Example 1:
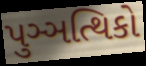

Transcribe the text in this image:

પુઞ્ઞત્થિકો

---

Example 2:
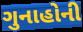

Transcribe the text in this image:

ગુનાહોની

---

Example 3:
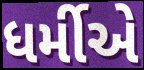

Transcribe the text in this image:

ધર્મીએ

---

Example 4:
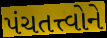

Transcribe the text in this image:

પંચતત્ત્વોને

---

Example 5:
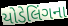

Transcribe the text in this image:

યોડેલિંગના